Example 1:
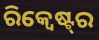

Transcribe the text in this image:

ରିକ୍ୱେଷ୍ଟ୍‌ର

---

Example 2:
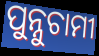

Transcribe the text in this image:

ପୁନ୍ନୁଚାମୀ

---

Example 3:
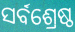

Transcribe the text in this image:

ସର୍ବଶ୍ରେଷ୍ଠ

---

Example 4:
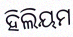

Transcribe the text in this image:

ହିଲିୟମ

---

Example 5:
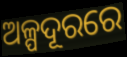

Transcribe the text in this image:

ଅଳ୍ପଦୂରରେ